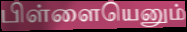
பிள்ளையெனும்